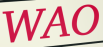
WAO